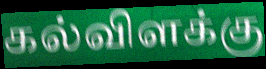
கல்விளக்கு